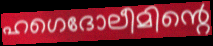
ഹഗെദോലീമിന്റെ